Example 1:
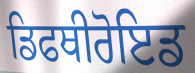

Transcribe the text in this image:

ਡਿਫਥੀਰੋਇਡ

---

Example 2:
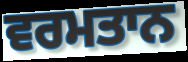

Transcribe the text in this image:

ਵਰਮਤਾਨ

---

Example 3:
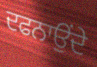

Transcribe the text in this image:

ਦਫਨਾਉਂਦੇ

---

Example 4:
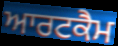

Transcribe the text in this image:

ਆਰਟਕੈਮ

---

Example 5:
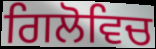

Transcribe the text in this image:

ਗਿਲੋਵਿਚ